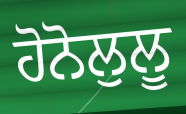
ਹੋਨੋਲੁਲੂ